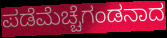
ಪಡೆಮೆಚ್ಚೆಗಂಡನಾದ